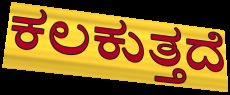
ಕಲಕುತ್ತದೆ